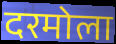
दरमोला